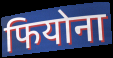
फियोना